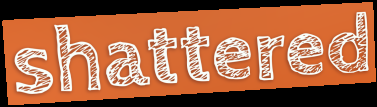
shattered